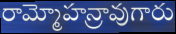
రామ్మోహన్రావుగారు